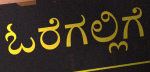
ಓರೆಗಲ್ಲಿಗೆ